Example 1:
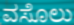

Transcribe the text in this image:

ವಸೊಲು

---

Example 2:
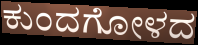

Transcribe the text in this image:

ಕುಂದಗೋಳದ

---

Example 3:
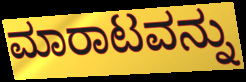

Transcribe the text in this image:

ಮಾರಾಟವನ್ನು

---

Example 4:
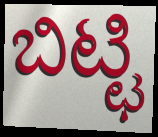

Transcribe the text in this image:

ಬಿಟ್ಟಿ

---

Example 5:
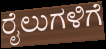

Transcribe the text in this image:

ರೈಲುಗಳಿಗೆ